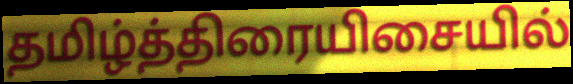
தமிழ்த்திரையிசையில்